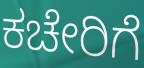
ಕಚೇರಿಗೆ